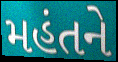
મહંતને